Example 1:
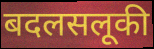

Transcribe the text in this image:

बदलसलूकी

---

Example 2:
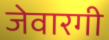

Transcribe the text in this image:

जेवारगी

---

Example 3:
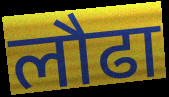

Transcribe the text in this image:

लौढा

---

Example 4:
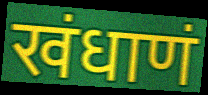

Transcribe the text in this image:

खंधाणं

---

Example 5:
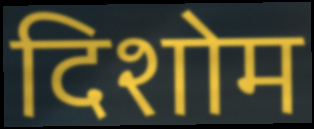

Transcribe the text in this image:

दिशोम